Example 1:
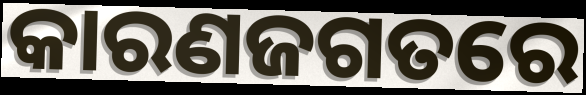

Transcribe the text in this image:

କାରଣଜଗତରେ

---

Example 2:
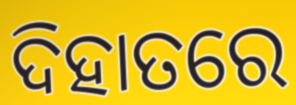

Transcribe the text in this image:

ଦିହାତରେ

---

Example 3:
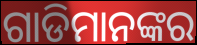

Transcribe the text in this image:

ଗାଡିମାନଙ୍କର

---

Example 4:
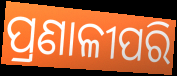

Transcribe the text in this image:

ପ୍ରଣାଳୀପରି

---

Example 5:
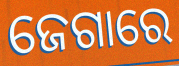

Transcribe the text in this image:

ଜେଗାରେ